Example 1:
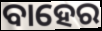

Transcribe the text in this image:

ବାହେର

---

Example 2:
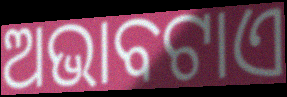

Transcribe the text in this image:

ଅଭାବଟାଏ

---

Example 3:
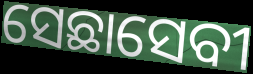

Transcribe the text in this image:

ସେଛାସେବୀ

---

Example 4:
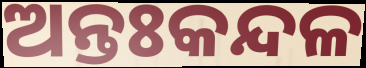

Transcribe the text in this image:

ଅନ୍ତଃକନ୍ଦଳ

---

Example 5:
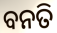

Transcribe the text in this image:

ବନତି